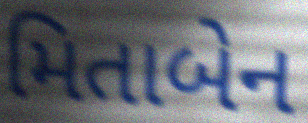
મિતાબેન